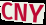
CNY